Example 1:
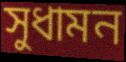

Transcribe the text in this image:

সুধামন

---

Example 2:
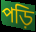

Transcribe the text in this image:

পড়ি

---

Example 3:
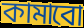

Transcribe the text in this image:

কামাবো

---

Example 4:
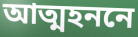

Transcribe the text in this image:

আত্মহননে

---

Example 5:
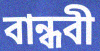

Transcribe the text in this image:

বান্ধবী